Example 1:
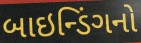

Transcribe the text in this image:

બાઇન્ડિંગનો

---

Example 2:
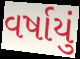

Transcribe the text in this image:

વર્ષાયું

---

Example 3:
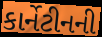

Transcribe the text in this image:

કાર્નેટીનની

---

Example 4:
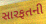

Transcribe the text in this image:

સારફતની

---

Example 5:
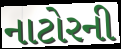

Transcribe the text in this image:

નાટોરની